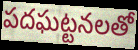
పదఘట్టనలతో